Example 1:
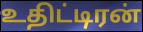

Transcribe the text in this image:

உதிட்டிரன்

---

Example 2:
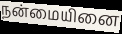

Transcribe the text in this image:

நன்மையினை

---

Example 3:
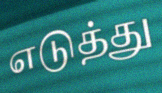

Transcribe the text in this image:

எடுத்து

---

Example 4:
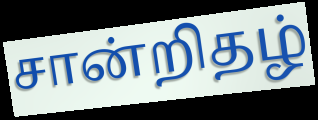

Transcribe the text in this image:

சான்றிதழ்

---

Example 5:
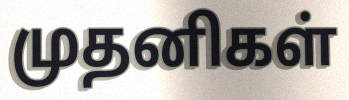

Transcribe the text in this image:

முதனிகள்